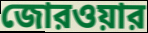
জোরওয়ার